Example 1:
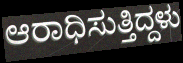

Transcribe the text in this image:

ಆರಾಧಿಸುತ್ತಿದ್ದಳು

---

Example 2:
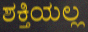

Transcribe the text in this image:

ಶಕ್ತಿಯಲ್ಲ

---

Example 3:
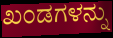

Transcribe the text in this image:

ಖಂಡಗಳನ್ನು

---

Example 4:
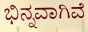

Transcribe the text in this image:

ಭಿನ್ನವಾಗಿವೆ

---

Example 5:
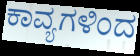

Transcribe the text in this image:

ಕಾವ್ಯಗಳಿಂದ